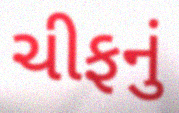
ચીફનું